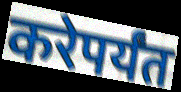
करेपर्यंत